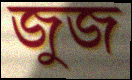
জুজ